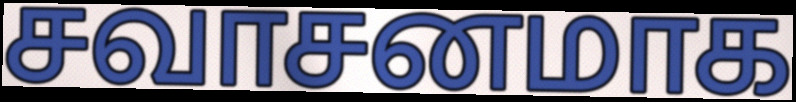
சவாசனமாக